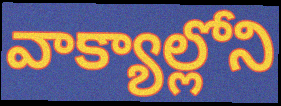
వాక్యాల్లోని